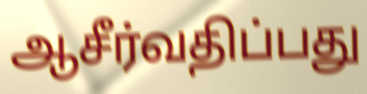
ஆசீர்வதிப்பது